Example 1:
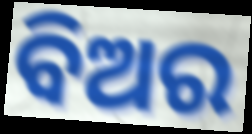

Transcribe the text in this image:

ବିଅର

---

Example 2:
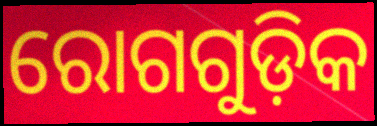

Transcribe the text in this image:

ରୋଗଗୁଡ଼ିକ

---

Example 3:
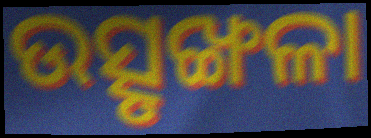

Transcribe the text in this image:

ଉତ୍ସୃଙ୍ଖଳା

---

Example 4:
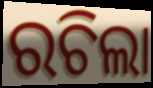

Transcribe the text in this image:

ରଚିଲା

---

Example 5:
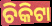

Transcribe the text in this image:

ଚିକିଟା